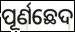
ପୂର୍ଣଛେଦ